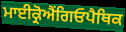
ਮਾਈਕ੍ਰੋਐਂਗਿਓਪੈਥਿਕ